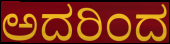
ಅದರಿಂದ